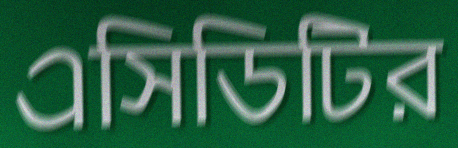
এসিডিটির